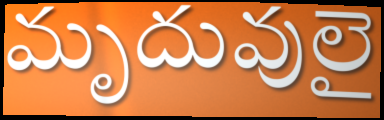
మృదువులై